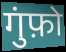
गुंफ़ो